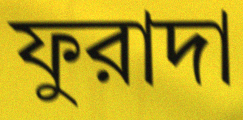
ফুরাদা